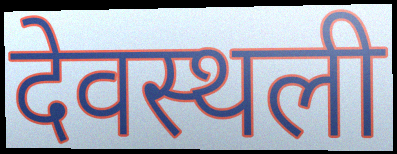
देवस्थली